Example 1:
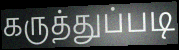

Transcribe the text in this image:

கருத்துப்படி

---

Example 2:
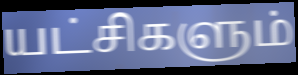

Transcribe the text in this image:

யட்சிகளும்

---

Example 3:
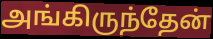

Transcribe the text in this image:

அங்கிருந்தேன்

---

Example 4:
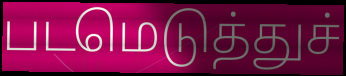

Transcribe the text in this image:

படமெடுத்துச்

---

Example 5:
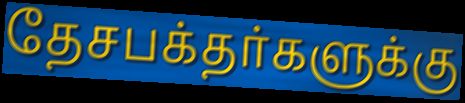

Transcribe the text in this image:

தேசபக்தர்களுக்கு